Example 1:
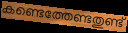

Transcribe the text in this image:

കണ്ടെത്തേണ്ടതുണ്ട്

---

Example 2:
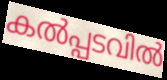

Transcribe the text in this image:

കൽപ്പടവിൽ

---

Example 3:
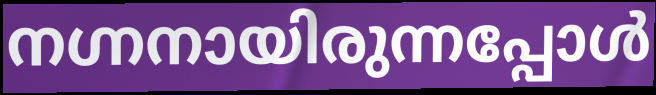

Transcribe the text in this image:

നഗ്നനായിരുന്നപ്പോൾ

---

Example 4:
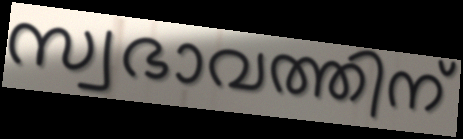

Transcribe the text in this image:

സ്വഭാവത്തിന്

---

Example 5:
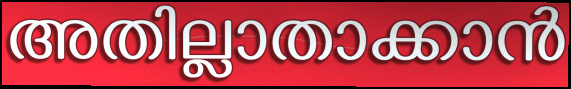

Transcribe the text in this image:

അതില്ലാതാക്കാൻ